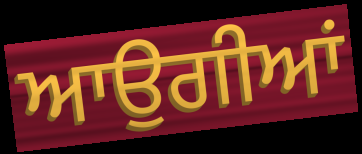
ਆਉਗੀਆਂ